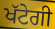
ਖੱਟੇਗੀ